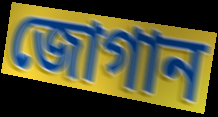
জোগান